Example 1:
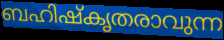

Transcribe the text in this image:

ബഹിഷ്കൃതരാവുന്ന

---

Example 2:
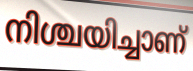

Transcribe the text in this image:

നിശ്ചയിച്ചാണ്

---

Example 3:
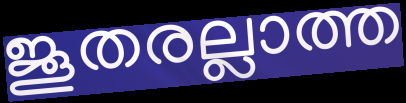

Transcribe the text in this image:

ജൂതരല്ലാത്ത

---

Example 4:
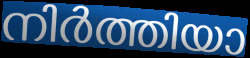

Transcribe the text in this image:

നിർത്തിയാ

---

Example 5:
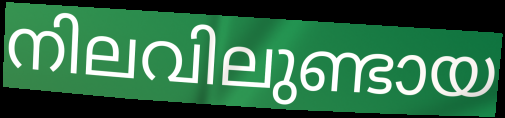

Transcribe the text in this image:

നിലവിലുണ്ടായ